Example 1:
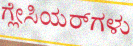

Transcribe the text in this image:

ಗ್ಲೇಸಿಯರ್‌ಗಳು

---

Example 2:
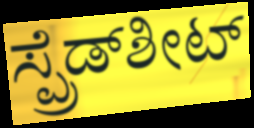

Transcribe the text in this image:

ಸ್ಪ್ರೆಡ್‌ಶೀಟ್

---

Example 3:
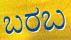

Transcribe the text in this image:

ಬರಬ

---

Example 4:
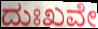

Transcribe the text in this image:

ದುಃಖವೇ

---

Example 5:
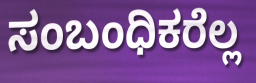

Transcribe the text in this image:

ಸಂಬಂಧಿಕರೆಲ್ಲ